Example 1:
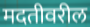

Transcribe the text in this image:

मदतीवरील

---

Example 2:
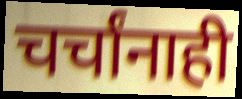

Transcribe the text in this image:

चर्चांनाही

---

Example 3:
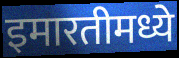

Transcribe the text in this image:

इमारतीमध्ये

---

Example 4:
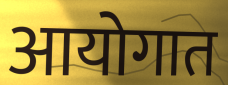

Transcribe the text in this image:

आयोगात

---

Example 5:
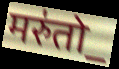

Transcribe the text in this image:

मरु॑तो॒